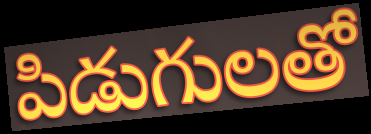
పిడుగులతో